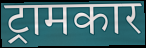
ट्रामकार